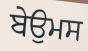
ਬੇਉਮਸ